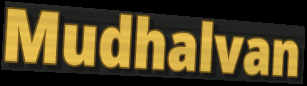
Mudhalvan